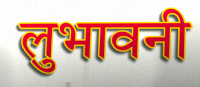
लुभावनी